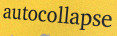
autocollapse